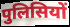
पुलिसियों